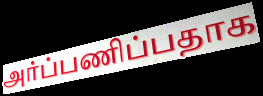
அர்ப்பணிப்பதாக